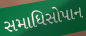
સમાધિસોપાન